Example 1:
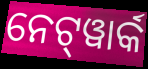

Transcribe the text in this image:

ନେଟ୍‌ୱାର୍କ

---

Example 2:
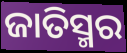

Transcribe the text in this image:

ଜାତିସ୍ମର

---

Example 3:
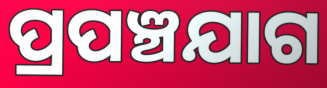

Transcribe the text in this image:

ପ୍ରପଞ୍ଚଯାଗ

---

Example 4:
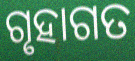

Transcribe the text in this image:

ଗୃହାଗତ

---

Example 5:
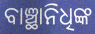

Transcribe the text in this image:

ବାଞ୍ଛାନିଧିଙ୍କ